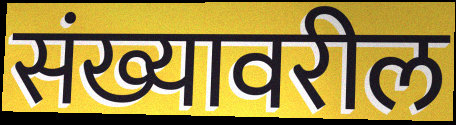
संख्यावरील